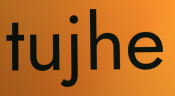
tujhe